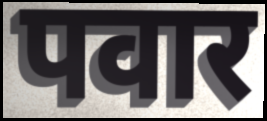
पवार